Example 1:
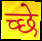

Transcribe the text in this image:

च्छे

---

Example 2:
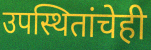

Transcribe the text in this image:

उपस्थितांचेही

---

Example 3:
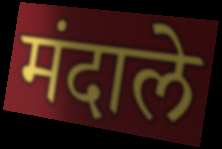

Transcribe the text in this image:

मंदाले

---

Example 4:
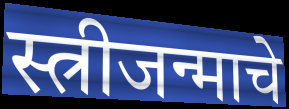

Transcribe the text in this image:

स्त्रीजन्माचे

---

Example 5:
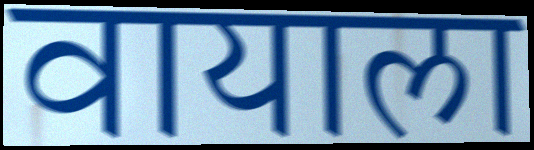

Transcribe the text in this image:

वायाला